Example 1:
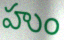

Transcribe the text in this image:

హుం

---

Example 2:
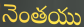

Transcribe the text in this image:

నెంతయు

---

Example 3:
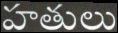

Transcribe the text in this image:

హతులు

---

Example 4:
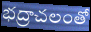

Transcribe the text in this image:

భద్రాచలంతో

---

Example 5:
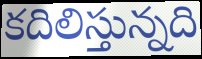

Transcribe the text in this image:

కదిలిస్తున్నది